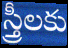
స్త్రీలకు